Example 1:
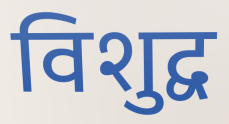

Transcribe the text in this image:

विशुद्व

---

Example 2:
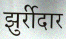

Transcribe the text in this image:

झुर्रीदार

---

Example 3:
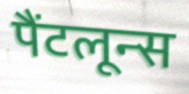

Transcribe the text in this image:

पैंटलून्स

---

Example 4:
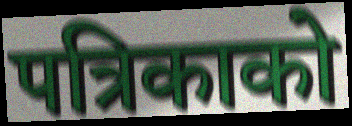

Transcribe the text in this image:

पत्रिकाको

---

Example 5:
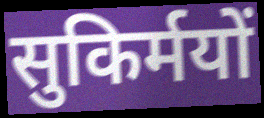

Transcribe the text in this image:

सुकिर्मयों